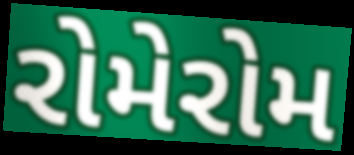
રોમેરોમ